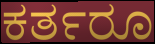
ಕರ್ತರೂ